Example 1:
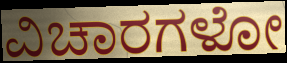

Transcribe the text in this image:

ವಿಚಾರಗಳೋ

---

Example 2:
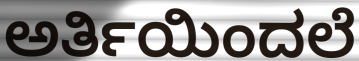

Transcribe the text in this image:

ಅರ್ತಿಯಿಂದಲೆ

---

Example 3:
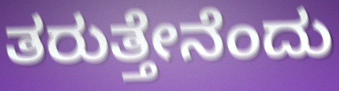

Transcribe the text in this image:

ತರುತ್ತೇನೆಂದು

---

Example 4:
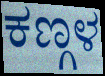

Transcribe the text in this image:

ಕಣ್ಗಳ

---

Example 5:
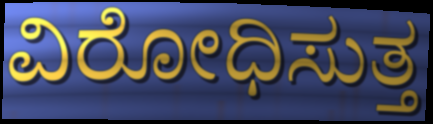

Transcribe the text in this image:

ವಿರೋಧಿಸುತ್ತ